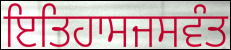
ਇਤਿਹਾਸਜਸਵੰਤ